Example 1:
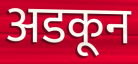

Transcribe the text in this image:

अडकून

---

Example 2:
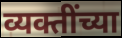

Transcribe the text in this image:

व्यक्तींच्या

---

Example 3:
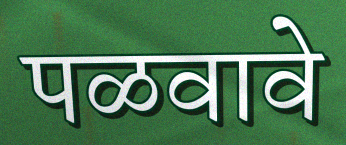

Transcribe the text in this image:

पळवावे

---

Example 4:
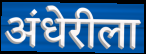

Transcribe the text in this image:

अंधेरीला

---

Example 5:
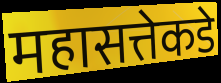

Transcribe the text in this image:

महासत्तेकडे